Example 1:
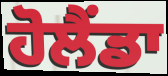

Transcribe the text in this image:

ਹੋਲੈਂਡਾ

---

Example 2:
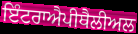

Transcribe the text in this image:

ਇੰਟਰਾਐਪੀਥੈਲੀਅਲ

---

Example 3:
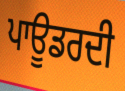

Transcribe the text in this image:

ਪਾਊਡਰਦੀ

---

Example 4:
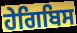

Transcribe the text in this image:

ਹੇਗਿਬਿਸ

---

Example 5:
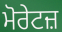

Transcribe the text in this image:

ਮੋਰੇਟਜ਼